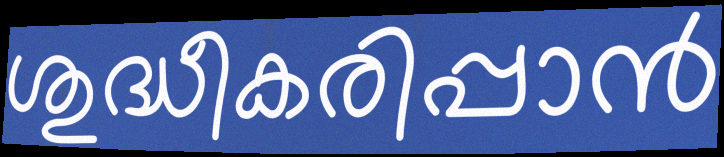
ശുദ്ധീകരിപ്പാൻ